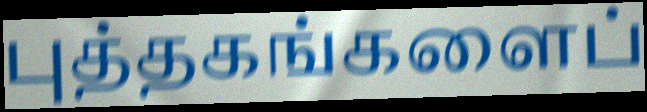
புத்தகங்களைப்